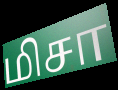
மிசா